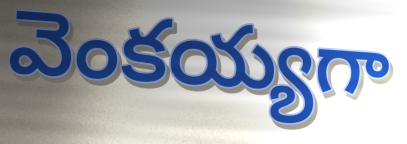
వెంకయ్యగా